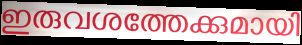
ഇരുവശത്തേക്കുമായി